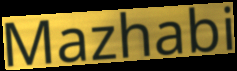
Mazhabi